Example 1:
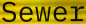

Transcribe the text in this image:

Sewer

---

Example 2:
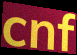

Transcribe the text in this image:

cnf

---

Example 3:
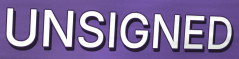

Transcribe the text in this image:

UNSIGNED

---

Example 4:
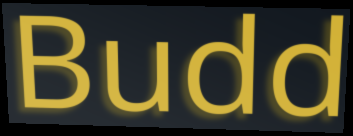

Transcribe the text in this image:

Budd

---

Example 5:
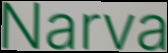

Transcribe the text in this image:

Narva